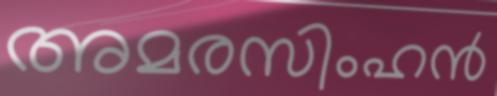
അമരസിംഹൻ